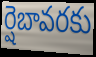
ర్షెబావరకు